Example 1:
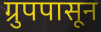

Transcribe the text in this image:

ग्रुपपासून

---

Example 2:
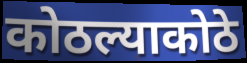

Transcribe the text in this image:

कोठल्याकोठे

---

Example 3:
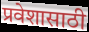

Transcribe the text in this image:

प्रवेशासाठी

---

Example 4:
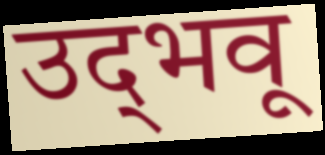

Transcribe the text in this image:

उद्‌भवू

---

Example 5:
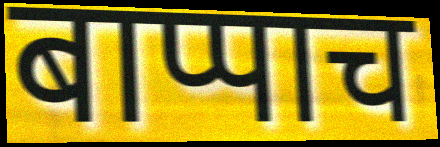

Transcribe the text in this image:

बाप्पाच